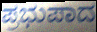
ಪ್ರಭುಪಾದ